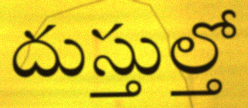
దుస్తుల్తో